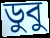
ডুবু